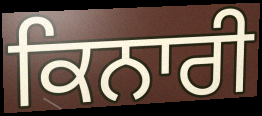
ਕਿਨਾਰੀ